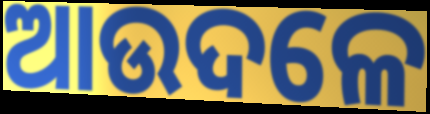
ଆଉଦଳେ